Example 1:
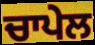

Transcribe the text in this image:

ਚਾਪੇਲ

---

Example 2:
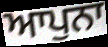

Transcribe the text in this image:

ਆਪੁਨਾ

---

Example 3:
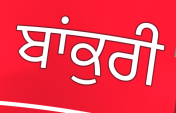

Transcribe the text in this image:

ਬਾਂਕੁਰੀ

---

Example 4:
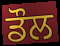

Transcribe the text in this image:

ਡੌਲ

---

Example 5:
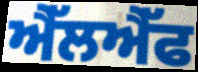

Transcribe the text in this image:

ਐੱਲਐੱਫ